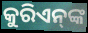
କୁରିଏନ୍‌ଙ୍କ